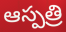
ఆస్పత్రి